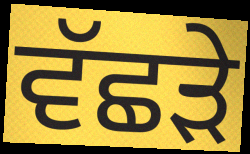
ਵੱਛੜੇ